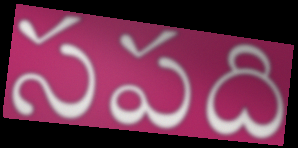
సపది